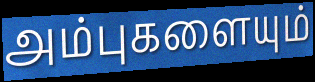
அம்புகளையும்